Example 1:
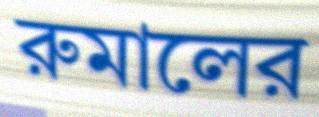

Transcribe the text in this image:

রুমালের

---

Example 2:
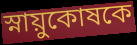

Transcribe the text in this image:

স্নায়ুকোষকে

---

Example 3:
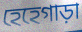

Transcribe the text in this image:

হেহেগাড়া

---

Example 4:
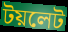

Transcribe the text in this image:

টয়লেট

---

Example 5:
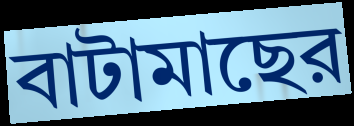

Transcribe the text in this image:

বাটামাছের